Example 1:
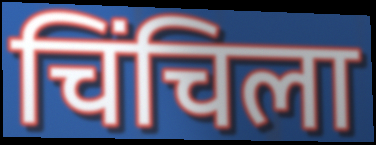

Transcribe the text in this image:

चिंचिला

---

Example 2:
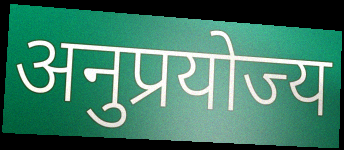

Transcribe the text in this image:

अनुप्रयोज्य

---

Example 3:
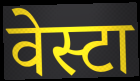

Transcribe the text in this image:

वेस्टा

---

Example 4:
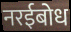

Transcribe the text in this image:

नरईबोध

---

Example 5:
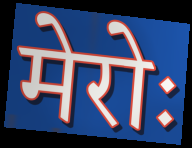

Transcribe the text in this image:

मेरोः